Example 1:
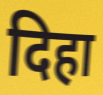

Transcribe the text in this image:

दिहा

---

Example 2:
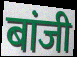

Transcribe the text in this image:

बांजी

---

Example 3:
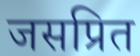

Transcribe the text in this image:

जसप्रित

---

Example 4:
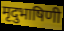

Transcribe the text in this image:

मृदुभाषिणी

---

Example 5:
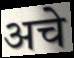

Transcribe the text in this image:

अचे